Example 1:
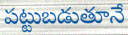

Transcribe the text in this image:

పట్టుబడుతూనే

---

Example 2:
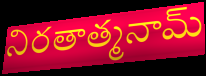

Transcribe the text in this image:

నిరతాత్మనామ్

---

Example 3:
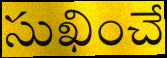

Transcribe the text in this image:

సుఖించే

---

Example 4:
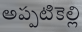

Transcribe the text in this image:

అప్పటికెల్లి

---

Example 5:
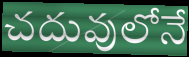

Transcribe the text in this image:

చదువులోనే